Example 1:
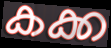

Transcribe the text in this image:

കക്ക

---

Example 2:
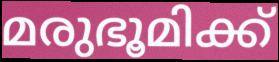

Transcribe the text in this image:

മരുഭൂമിക്ക്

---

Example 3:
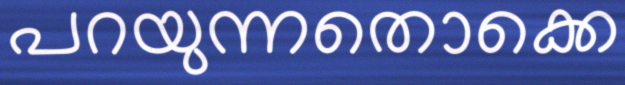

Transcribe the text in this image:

പറയുന്നതൊക്കെ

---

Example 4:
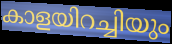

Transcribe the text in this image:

കാളയിറച്ചിയും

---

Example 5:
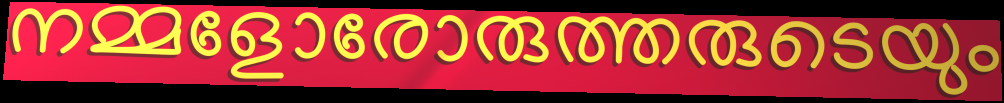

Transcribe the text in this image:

നമ്മളോരോരുത്തരുടെയും